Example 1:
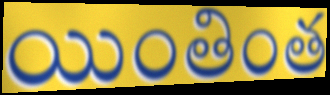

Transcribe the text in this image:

యింతింత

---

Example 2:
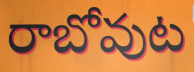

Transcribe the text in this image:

రాబోవుట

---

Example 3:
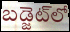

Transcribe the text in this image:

బడ్జెట్‌లో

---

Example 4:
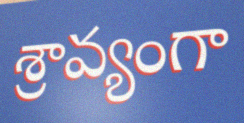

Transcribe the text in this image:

శ్రావ్యంగా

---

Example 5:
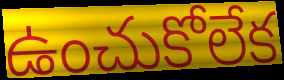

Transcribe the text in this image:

ఉంచుకోలేక